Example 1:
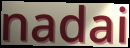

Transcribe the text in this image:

nadai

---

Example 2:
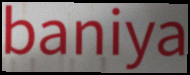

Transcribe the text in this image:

baniya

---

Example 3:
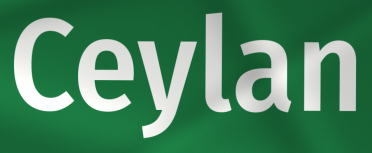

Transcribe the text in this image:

Ceylan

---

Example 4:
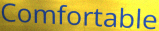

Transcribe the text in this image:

Comfortable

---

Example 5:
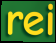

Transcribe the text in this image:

rei